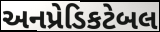
અનપ્રેડિકટેબલ